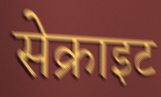
सेक्राइट